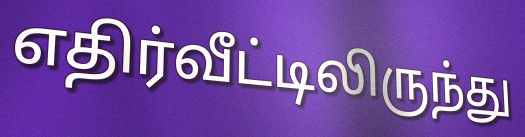
எதிர்வீட்டிலிருந்து